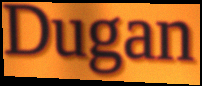
Dugan